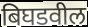
बिघडवील